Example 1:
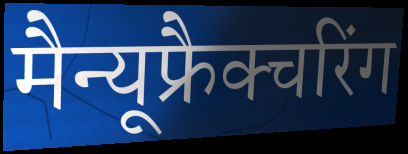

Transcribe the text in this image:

मैन्यूफ्रैक्चरिंग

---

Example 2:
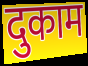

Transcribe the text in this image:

दुकाम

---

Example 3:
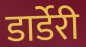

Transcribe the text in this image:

डार्डेरी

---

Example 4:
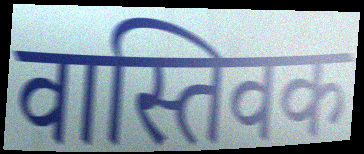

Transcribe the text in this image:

वास्तिवक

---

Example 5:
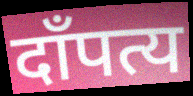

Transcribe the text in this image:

दाँपत्य